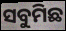
ସବୁମିଛ